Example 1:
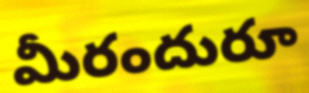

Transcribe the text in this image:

మీరందురూ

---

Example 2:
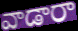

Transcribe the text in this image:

వాడారా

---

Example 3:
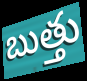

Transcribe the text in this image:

బుత్తు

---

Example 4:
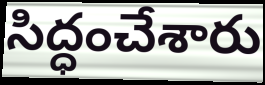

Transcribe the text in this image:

సిద్ధంచేశారు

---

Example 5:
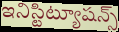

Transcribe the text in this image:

ఇనిస్టిట్యూషన్స్